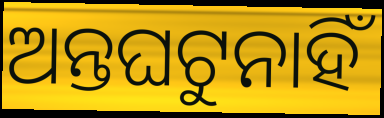
ଅନ୍ତଘଟୁନାହିଁ